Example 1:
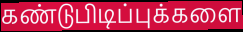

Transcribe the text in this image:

கண்டுபிடிப்புக்களை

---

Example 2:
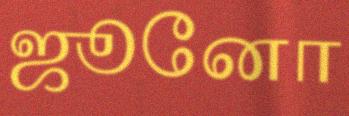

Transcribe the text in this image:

ஜூனோ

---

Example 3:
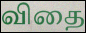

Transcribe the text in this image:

விதை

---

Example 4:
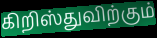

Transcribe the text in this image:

கிறிஸ்துவிற்கும்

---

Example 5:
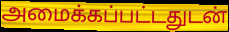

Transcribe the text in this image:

அமைக்கப்பட்டதுடன்